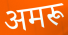
अमरू